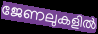
ജേണലുകളിൽ